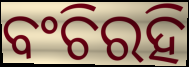
ବଂଚିରହି